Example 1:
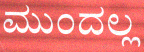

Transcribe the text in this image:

ಮುಂದಲ್ಲ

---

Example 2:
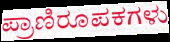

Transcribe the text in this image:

ಪ್ರಾಣಿರೂಪಕಗಳು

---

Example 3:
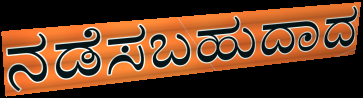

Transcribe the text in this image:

ನಡೆಸಬಹುದಾದ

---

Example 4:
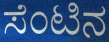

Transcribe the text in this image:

ಸೆಂಟಿನ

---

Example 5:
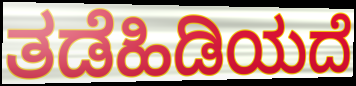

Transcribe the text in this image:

ತಡೆಹಿಡಿಯದೆ